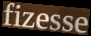
fizesse